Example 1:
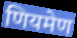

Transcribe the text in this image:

णियमेण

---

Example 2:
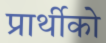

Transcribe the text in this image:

प्रार्थीको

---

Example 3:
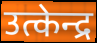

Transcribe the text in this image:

उत्केन्द्र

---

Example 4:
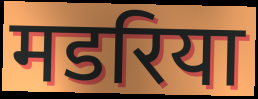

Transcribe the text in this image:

मडरिया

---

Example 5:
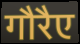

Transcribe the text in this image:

गौरैए